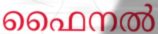
ഫൈനൽ